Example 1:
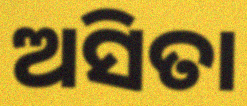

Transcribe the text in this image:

ଅସିତା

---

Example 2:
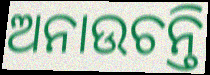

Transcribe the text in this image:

ଅନାଉଚନ୍ତି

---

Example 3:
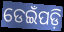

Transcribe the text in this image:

ଡେଇଁପଡ଼ି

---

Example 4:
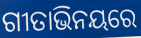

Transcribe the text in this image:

ଗୀତାଭିନୟରେ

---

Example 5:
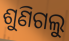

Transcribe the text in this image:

ଶୁଣିଗଲୁ